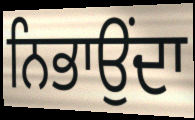
ਨਿਭਾਉਂਦਾ